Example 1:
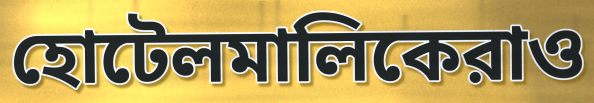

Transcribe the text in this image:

হোটেলমালিকেরাও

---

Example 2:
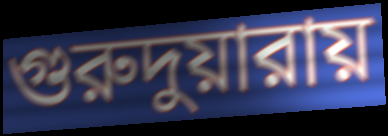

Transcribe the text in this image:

গুরুদুয়ারায়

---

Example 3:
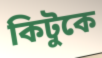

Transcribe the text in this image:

কিটুকে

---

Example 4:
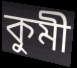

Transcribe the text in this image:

কুমী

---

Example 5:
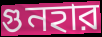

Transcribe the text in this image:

গুনহার